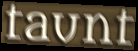
taunt